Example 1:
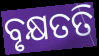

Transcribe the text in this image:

ବୃକ୍ଷତତି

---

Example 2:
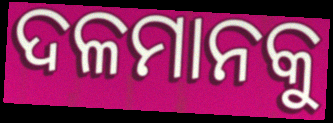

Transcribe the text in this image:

ଦଳମାନକୁ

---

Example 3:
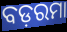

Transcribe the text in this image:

ବଡ଼ରମା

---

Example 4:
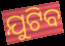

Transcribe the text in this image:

ଯୁଟିବ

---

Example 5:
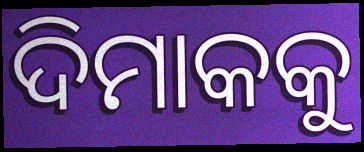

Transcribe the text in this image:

ଦିମାକକୁ